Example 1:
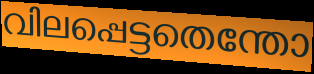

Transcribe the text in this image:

വിലപ്പെട്ടതെന്തോ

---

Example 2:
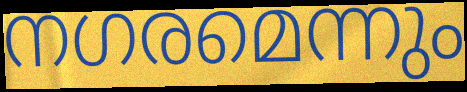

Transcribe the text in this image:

നഗരമെന്നും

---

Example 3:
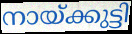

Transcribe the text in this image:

നായ്ക്കുട്ടി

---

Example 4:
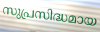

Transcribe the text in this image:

സുപ്രസിദ്ധമായ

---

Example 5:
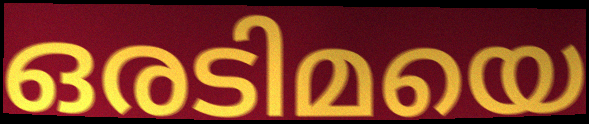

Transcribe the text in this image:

ഒരടിമയെ